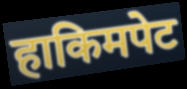
हाकिमपेट